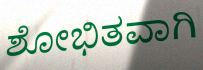
ಶೋಭಿತವಾಗಿ